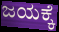
ಜಯಕ್ಕೆ